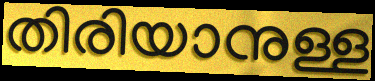
തിരിയാനുള്ള